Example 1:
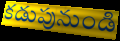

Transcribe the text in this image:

కడుపునుండి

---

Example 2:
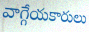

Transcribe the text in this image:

వాగ్గేయకారులు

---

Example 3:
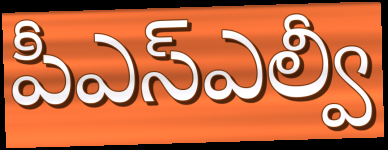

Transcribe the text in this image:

పీఎస్ఎల్వీ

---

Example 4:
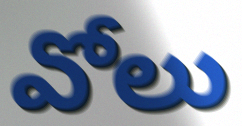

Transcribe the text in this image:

వోలు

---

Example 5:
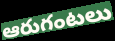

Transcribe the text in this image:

ఆరుగంటలు